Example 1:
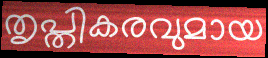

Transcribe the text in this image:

തൃപ്തികരവുമായ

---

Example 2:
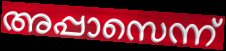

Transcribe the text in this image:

അപ്പാസെന്ന്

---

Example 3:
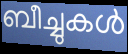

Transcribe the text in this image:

ബീച്ചുകൾ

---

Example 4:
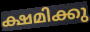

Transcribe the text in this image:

ക്ഷമിക്കു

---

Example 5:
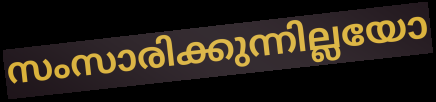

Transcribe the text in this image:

സംസാരിക്കുന്നില്ലയോ